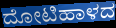
ದೋಟಿಹಾಳದ